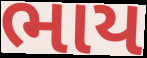
ભાય